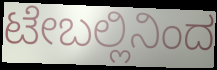
ಟೇಬಲ್ಲಿನಿಂದ